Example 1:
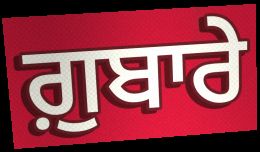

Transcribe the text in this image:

ਗ਼ੁਬਾਰੇ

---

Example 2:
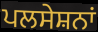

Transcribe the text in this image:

ਪਲਸੇਸ਼ਨਾਂ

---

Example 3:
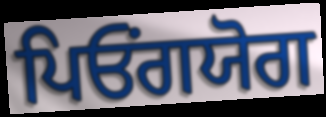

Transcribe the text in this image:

ਪਿਓਂਗਯੋਗ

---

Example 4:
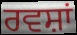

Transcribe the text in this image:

ਰਵਸ਼ਾਂ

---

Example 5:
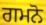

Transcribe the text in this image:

ਗਮਨੋ